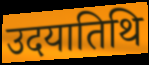
उदयातिथि